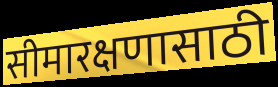
सीमारक्षणासाठी